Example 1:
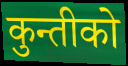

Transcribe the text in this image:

कुन्तीको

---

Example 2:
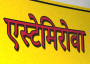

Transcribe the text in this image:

एस्टेमिरोवा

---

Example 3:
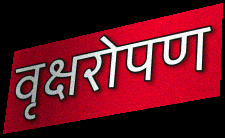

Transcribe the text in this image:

वृक्षरोपण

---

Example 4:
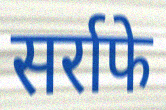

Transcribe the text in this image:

सर्राफे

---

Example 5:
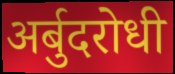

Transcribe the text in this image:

अर्बुदरोधी